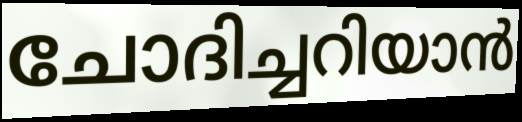
ചോദിച്ചറിയാൻ